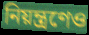
নিয়ন্ত্রণেও